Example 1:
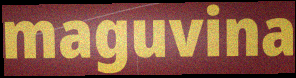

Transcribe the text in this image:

maguvina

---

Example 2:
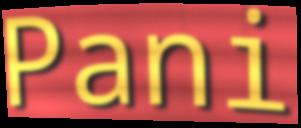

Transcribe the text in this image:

Pani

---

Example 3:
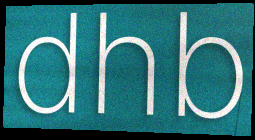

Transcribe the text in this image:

dhb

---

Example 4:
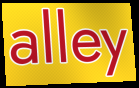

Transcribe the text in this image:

alley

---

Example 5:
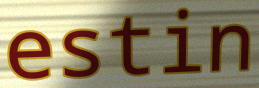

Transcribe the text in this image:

estin